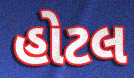
હોટલ